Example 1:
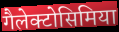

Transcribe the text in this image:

गैलेक्टोसिमिया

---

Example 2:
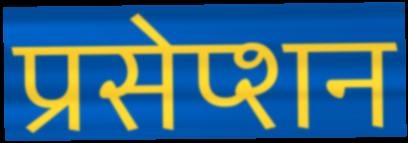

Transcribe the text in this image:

प्रसेप्शन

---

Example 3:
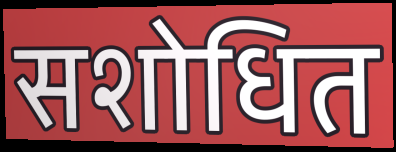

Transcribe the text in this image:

सशोधित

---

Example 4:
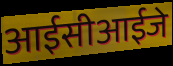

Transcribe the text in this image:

आईसीआईजे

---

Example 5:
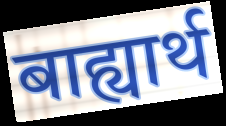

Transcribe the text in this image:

बाह्यार्थ